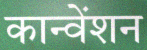
कान्वेंशन